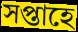
সপ্তাহে